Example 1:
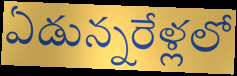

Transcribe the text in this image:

ఏడున్నరేళ్లలో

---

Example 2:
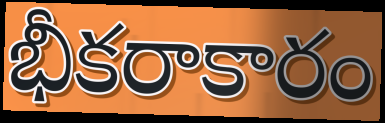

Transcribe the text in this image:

భీకరాకారం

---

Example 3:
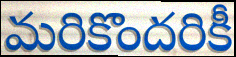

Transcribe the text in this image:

మరికొందరికీ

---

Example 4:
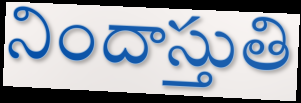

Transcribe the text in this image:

నిందాస్తుతి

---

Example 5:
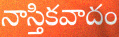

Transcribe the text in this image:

నాస్తికవాదం